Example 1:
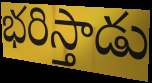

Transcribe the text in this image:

భరిస్తాడు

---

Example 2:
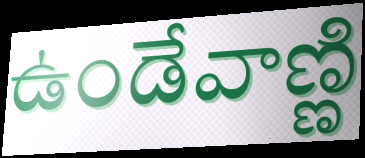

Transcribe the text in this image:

ఉండేవాణ్ణి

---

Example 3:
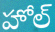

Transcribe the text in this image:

హోల్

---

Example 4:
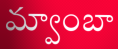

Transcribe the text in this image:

మ్వాంబా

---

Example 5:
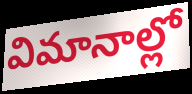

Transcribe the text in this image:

విమానాల్లో